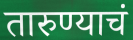
तारुण्याचं